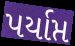
પર્યાપ્ત